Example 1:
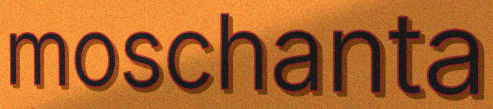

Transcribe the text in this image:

moschanta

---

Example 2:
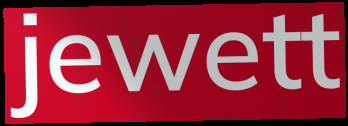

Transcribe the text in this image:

jewett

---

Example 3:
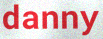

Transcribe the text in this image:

danny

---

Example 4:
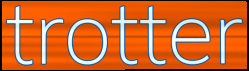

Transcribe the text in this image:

trotter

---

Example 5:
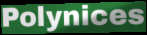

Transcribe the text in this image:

Polynices